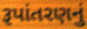
રૂપાંતરણનું